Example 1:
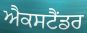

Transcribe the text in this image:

ਐਕਸਟੈਂਡਰ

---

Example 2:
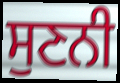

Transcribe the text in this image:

ਸੁਣਨੀ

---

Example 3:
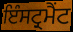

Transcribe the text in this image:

ਇੰਸਟ੍ਰਮੈਂਟ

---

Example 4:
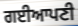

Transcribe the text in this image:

ਗਈਆਪਣੀ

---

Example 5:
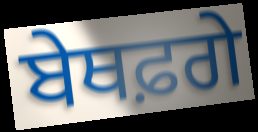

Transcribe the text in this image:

ਬੇਥਫ਼ਗੇ